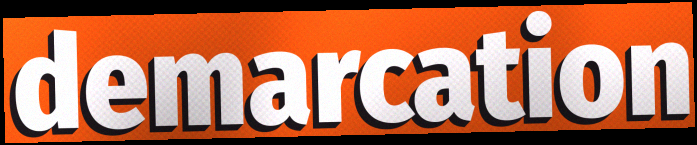
demarcation